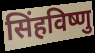
सिंहविष्णु